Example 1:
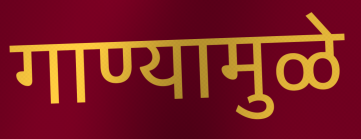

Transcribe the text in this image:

गाण्यामुळे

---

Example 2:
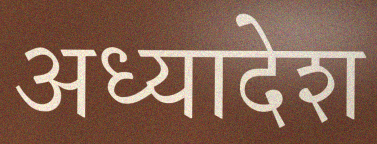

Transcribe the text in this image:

अध्यादेश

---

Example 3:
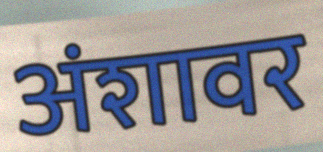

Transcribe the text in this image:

अंशावर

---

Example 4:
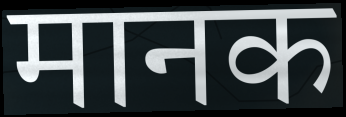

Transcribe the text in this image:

मानक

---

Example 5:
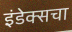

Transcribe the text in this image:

इंडेक्सचा